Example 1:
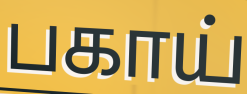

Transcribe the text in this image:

பகாய்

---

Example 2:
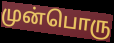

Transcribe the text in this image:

முன்பொரு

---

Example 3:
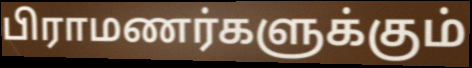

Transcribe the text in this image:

பிராமணர்களுக்கும்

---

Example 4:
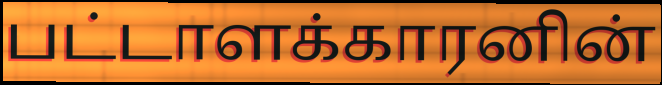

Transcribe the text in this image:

பட்டாளக்காரனின்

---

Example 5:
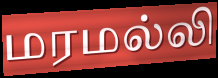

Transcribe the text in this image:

மரமல்லி